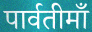
पार्वतीमाँ